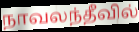
நாவலந்தீவில்